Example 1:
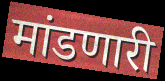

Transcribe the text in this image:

मांडणारी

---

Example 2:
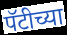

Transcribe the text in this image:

पॅटीच्या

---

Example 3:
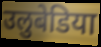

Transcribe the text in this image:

उलुबेडिया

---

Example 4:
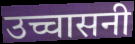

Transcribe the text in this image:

उच्चासनी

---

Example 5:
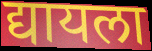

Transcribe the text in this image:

द्यायला